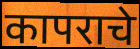
कापराचे